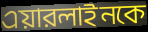
এয়ারলাইনকে